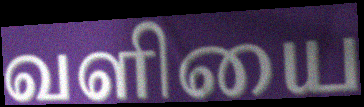
வளியை